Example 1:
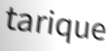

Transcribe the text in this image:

tarique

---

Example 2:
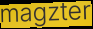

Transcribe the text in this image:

magzter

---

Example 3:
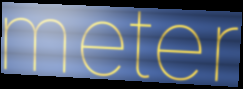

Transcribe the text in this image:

meter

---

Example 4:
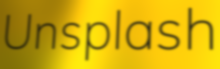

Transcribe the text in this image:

Unsplash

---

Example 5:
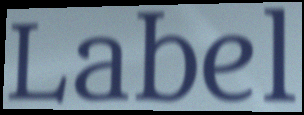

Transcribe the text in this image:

Label